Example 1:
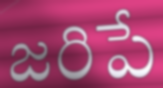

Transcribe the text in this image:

జరిపే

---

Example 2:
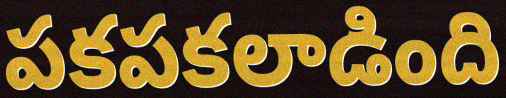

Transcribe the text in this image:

పకపకలాడింది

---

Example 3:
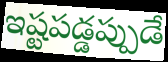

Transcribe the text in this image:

ఇష్టపడ్డప్పుడే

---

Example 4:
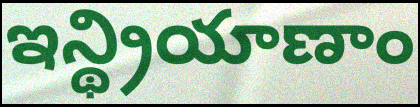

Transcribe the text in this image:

ఇన్థ్రియాణాం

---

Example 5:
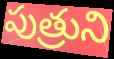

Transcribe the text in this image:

పుత్రుని